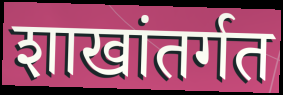
शाखांतर्गत